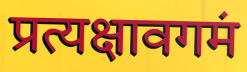
प्रत्यक्षावगमं